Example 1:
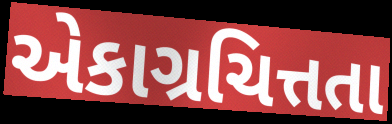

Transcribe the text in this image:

એકાગ્રચિત્તતા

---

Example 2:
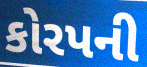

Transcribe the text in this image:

કોરપની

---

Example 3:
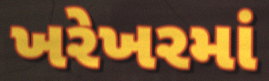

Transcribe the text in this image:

ખરેખરમાં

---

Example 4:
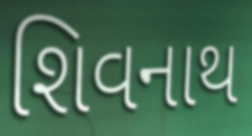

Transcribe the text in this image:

શિવનાથ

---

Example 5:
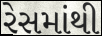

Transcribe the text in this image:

રેસમાંથી